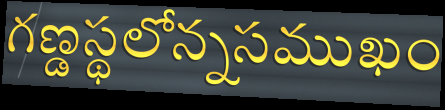
గణ్డస్థలోన్నసముఖం